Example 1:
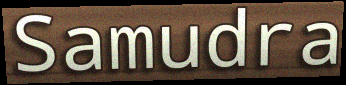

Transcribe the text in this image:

Samudra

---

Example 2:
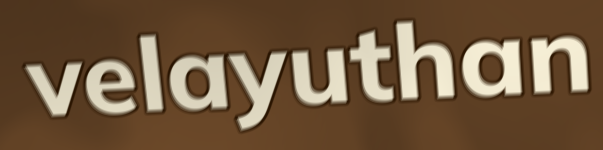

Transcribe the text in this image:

velayuthan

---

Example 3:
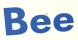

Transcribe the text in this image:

Bee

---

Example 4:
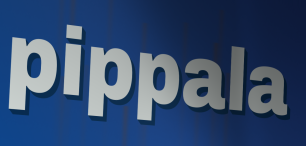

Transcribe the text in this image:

pippala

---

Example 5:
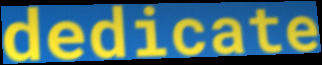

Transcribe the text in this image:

dedicate